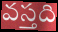
వస్తది